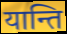
यान्ति